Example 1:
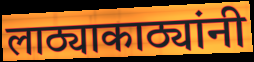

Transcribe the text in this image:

लाठ्याकाठ्यांनी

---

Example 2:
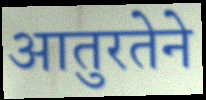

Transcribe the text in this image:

आतुरतेने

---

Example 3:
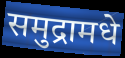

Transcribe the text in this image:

समुद्रामधे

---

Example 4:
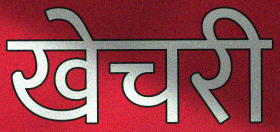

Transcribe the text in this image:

खेचरी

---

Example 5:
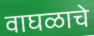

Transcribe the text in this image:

वाघळाचे